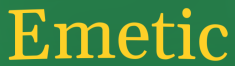
Emetic